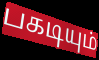
பகடியும்